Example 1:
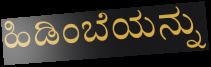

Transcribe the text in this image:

ಹಿಡಿಂಬೆಯನ್ನು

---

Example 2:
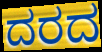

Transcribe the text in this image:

ದರದ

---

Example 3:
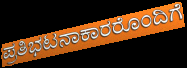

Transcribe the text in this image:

ಪ್ರತಿಭಟನಾಕಾರರೊಂದಿಗೆ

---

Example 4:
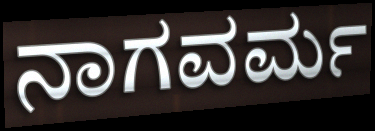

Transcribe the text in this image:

ನಾಗವರ್ಮ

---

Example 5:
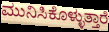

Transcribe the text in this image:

ಮುನಿಸಿಕೊಳ್ಳುತ್ತಾರೆ